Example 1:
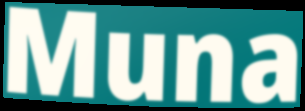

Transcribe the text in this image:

Muna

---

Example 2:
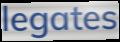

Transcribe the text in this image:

legates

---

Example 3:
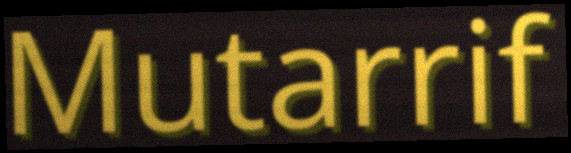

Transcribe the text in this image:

Mutarrif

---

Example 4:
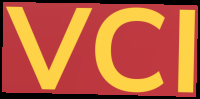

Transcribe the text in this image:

VCI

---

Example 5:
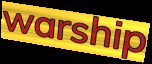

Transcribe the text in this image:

warship